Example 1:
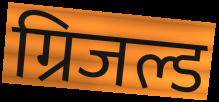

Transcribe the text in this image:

ग्रिजल्ड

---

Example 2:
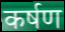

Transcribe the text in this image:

कर्षण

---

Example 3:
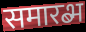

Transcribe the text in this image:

समारब्भ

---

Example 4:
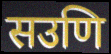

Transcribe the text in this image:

सउणि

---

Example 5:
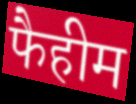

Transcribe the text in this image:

फैहीम